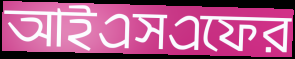
আইএসএফের